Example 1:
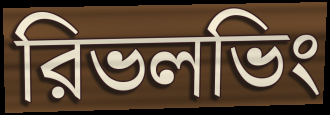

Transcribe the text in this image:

রিভলভিং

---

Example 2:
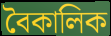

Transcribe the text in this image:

বৈকালিক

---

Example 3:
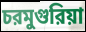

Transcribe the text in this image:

চরমুগুরিয়া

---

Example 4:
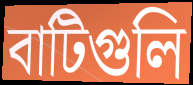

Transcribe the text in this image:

বাটিগুলি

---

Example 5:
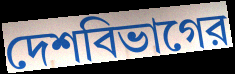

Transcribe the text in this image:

দেশবিভাগের